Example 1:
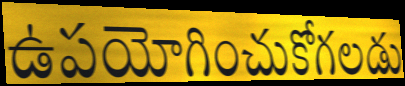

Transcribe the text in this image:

ఉపయోగించుకోగలడు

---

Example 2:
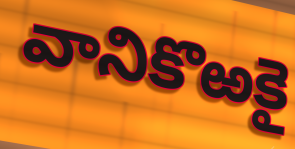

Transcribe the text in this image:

వానికొఱకై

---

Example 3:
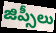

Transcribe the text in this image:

జిప్సీలు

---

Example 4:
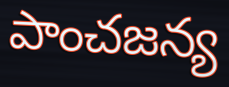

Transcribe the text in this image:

పాంచజన్య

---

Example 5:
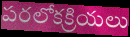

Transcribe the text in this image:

పరలోకక్రియలు